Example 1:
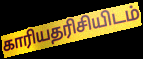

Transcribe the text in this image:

காரியதரிசியிடம்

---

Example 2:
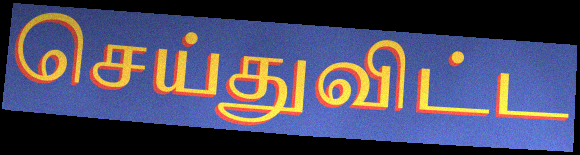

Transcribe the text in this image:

செய்துவிட்ட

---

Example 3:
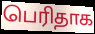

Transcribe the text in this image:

பெரிதாக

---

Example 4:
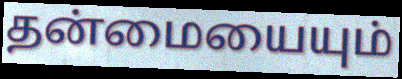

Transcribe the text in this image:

தன்மையையும்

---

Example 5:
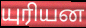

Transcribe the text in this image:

யுரியன